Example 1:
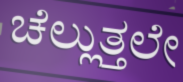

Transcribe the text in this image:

ಚೆಲ್ಲುತ್ತಲೇ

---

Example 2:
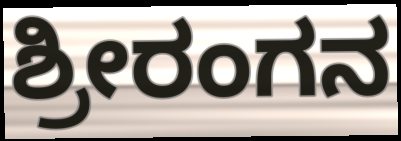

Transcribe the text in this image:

ಶ್ರೀರಂಗನ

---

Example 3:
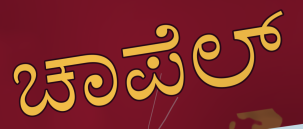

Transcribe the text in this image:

ಚಾಪೆಲ್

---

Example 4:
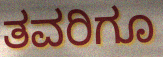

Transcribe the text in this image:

ತವರಿಗೂ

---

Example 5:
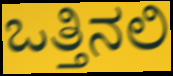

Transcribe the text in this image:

ಒತ್ತಿನಲಿ